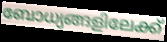
ബോധ്യങ്ങളിലേക്ക്